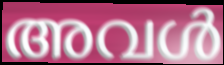
അവൾ